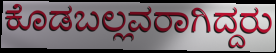
ಕೊಡಬಲ್ಲವರಾಗಿದ್ದರು